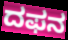
ದಫನ